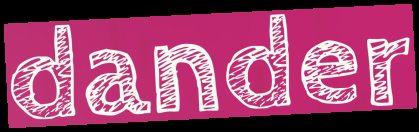
dander